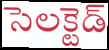
సెలక్టెడ్